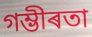
গম্ভীৰতা